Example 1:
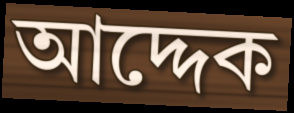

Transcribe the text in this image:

আদ্দেক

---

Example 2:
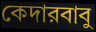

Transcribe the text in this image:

কেদারবাবু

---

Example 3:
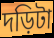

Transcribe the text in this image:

দড়িটা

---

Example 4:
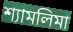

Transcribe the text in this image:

শ্যামলিমা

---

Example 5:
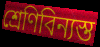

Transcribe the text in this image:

শ্রেণিবিন্যস্ত